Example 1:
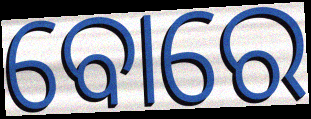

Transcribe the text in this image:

ବୋରେ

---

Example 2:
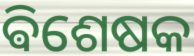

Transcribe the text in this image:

ଵିଶେଷକ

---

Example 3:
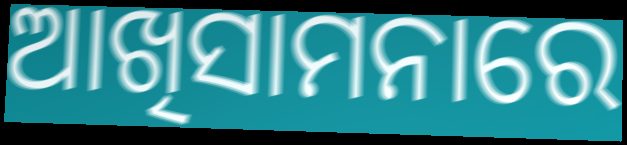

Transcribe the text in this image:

ଆଖିସାମନାରେ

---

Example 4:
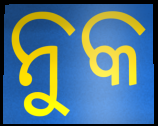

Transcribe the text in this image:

ନୁକ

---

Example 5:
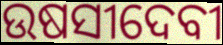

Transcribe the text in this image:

ଉଷସୀଦେବୀ